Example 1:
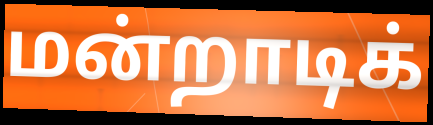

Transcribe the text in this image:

மன்றாடிக்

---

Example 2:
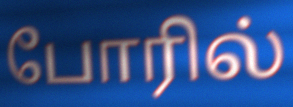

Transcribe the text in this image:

போரில்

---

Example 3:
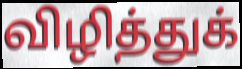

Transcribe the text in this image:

விழித்துக்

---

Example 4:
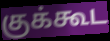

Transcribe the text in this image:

குக்கூட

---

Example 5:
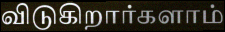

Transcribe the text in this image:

விடுகிறார்களாம்